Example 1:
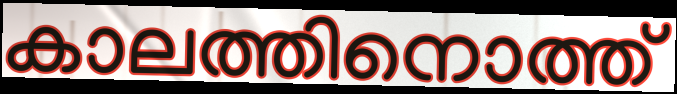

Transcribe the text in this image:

കാലത്തിനൊത്ത്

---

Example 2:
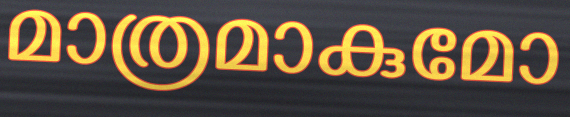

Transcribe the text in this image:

മാത്രമാകുമോ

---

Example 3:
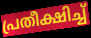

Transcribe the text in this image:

പ്രതീക്ഷിച്ച്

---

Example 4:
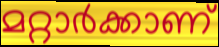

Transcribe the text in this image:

മറ്റാർക്കാണ്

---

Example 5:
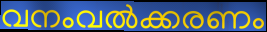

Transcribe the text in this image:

വനംവൽക്കരണം